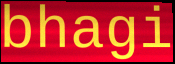
bhagi